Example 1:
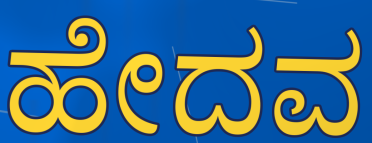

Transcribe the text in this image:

ಹೇದವ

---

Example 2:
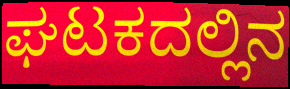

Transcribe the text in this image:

ಘಟಕದಲ್ಲಿನ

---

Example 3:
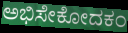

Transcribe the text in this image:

ಅಭಿಸೇಕೋದಕಂ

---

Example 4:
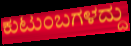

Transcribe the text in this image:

ಕುಟುಂಬಗಳದ್ದು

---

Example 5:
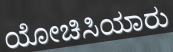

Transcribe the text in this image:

ಯೋಚಿಸಿಯಾರು